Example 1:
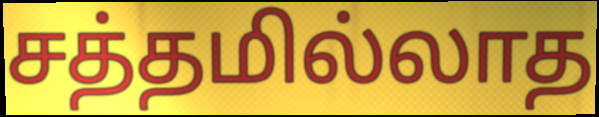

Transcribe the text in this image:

சத்தமில்லாத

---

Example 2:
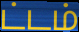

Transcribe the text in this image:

ட்டம்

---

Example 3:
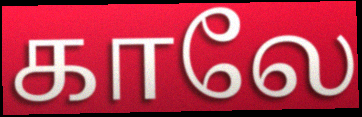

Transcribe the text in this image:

காலே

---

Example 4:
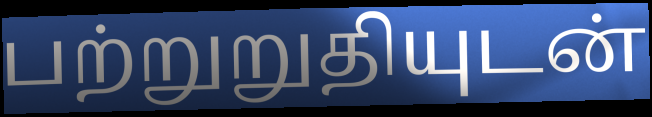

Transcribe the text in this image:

பற்றுறுதியுடன்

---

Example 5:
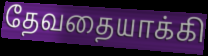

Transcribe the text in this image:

தேவதையாக்கி